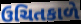
ઉચિતકાળે